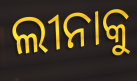
ଲୀନାକୁ